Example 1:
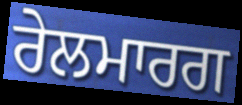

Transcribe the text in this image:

ਰੇਲਮਾਰਗ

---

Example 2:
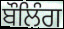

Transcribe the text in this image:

ਬੌਲਿੰਗ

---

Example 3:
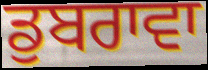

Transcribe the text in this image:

ਡੁਬਰਾਵਾ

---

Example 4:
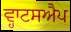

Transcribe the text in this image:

ਵ੍ਹਾਟਸਐਪ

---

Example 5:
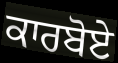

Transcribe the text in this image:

ਕਾਰਬੋਏ